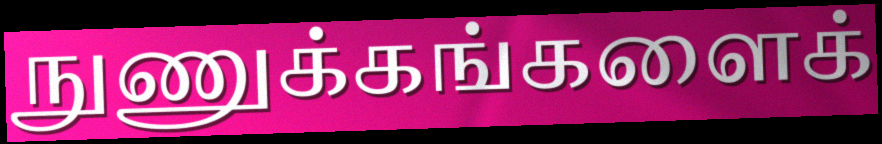
நுணுக்கங்களைக்